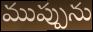
ముప్పును